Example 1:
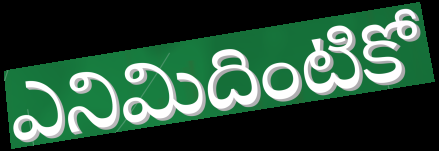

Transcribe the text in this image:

ఎనిమిదింటికో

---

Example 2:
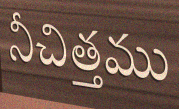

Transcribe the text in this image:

నీచిత్తము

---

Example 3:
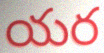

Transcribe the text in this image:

యర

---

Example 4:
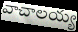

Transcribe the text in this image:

వాచాలయ్య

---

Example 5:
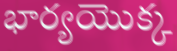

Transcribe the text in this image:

భార్యయొక్క